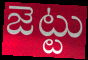
జెట్టు